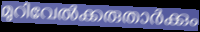
മുറിവേൽക്കരുതാർക്കും